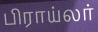
பிராய்லர்